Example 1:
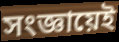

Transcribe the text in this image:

সংজ্ঞায়েই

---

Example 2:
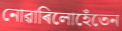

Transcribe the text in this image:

নোৱাৰিলোহেঁতেন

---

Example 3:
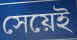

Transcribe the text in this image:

সেয়েই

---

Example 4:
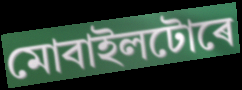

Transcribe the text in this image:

মোবাইলটোৰে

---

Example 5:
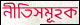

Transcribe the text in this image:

নীতিসমূহক